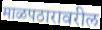
माळपठारावरील